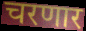
चरणार